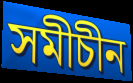
সমীচীন